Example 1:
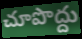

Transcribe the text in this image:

చూపొద్దు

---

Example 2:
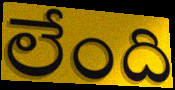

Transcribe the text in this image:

లేంది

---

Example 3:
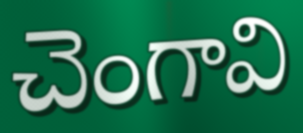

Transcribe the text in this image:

చెంగావి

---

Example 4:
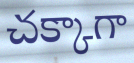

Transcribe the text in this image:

చక్కాగా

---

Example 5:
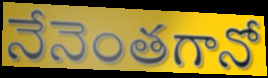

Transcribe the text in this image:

నేనెంతగానో